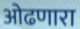
ओढणारा